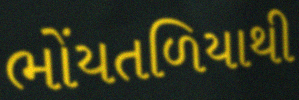
ભોંયતળિયાથી